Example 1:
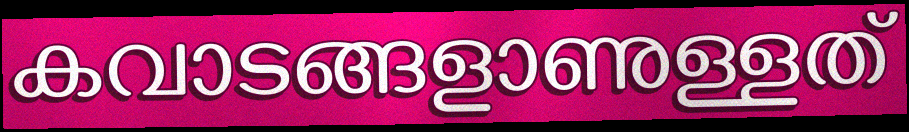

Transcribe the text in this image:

കവാടങ്ങളാണുള്ളത്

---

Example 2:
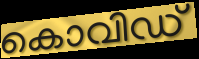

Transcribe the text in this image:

കൊവിഡ്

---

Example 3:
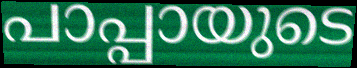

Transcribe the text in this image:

പാപ്പായുടെ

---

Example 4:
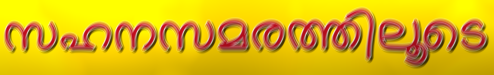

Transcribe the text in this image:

സഹനസമരത്തിലൂടെ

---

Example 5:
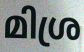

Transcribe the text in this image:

മിശ്ര